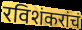
रविशंकरांचं